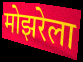
मोझरेला